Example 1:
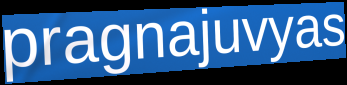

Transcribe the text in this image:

pragnajuvyas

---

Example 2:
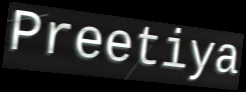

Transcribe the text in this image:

Preetiya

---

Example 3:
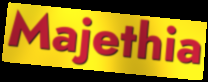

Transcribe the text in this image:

Majethia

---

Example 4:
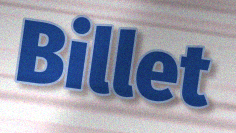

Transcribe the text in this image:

Billet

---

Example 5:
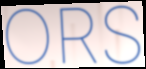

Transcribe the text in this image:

ORS